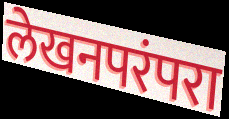
लेखनपरंपरा